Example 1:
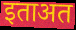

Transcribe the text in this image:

इताअत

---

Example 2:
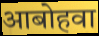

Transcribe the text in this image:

आबोहवा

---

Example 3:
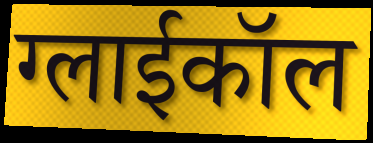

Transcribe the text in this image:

ग्लाईकॉल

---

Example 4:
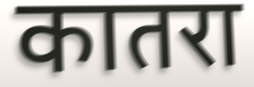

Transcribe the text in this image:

कातरा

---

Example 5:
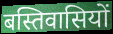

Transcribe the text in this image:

बस्तिवासियों